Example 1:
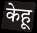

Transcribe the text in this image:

केहू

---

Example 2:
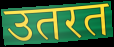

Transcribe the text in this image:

उतरत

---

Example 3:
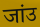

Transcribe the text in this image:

जांउ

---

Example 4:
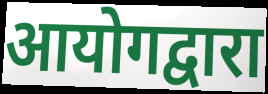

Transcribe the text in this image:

आयोगद्वारा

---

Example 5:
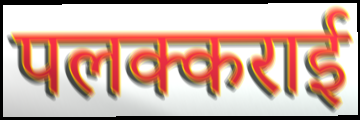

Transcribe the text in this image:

पलक्कराई